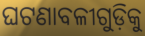
ଘଟଣାବଳୀଗୁଡ଼ିକୁ